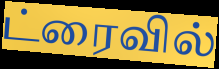
ட்ரைவில்